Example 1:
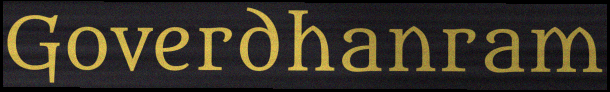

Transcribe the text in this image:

Goverdhanram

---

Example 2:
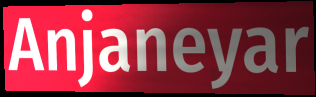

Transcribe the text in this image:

Anjaneyar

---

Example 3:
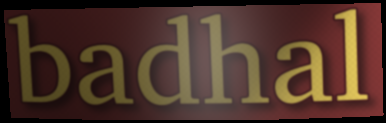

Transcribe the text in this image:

badhal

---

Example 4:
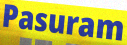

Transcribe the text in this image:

Pasuram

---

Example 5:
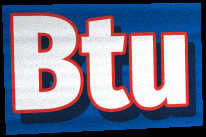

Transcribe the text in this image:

Btu